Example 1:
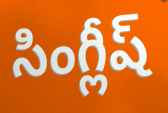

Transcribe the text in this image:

సింగ్లీష్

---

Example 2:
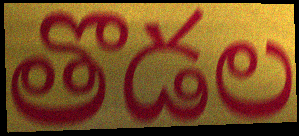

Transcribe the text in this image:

తొడల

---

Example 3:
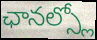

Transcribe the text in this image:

ఛానల్స్లో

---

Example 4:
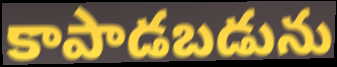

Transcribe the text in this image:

కాపాడబడును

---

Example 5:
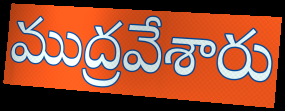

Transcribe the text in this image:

ముద్రవేశారు